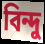
বিন্দু